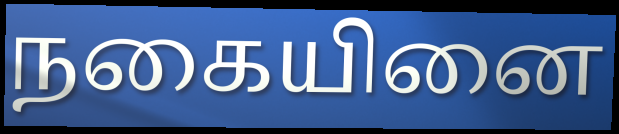
நகையினை